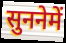
सुननेमें